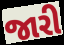
જારી